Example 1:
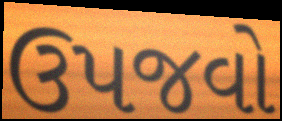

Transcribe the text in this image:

ઉપજવો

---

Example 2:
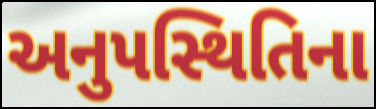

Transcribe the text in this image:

અનુપસ્થિતિના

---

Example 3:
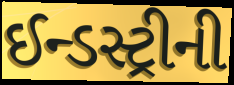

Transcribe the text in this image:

ઈન્ડસ્ટ્રીની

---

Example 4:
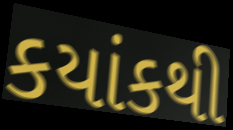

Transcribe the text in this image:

કયાંકથી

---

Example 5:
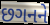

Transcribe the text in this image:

છગનને